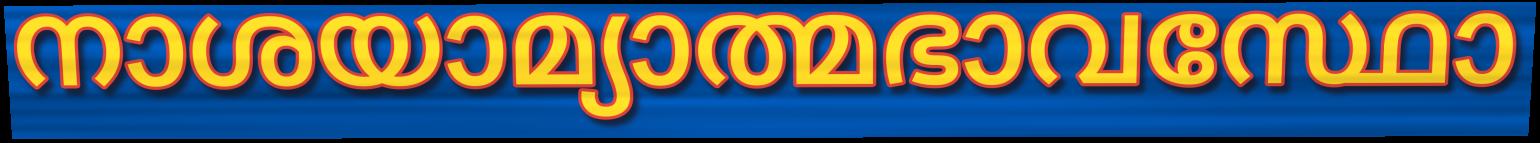
നാശയാമ്യാത്മഭാവസ്ഥോ